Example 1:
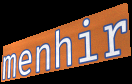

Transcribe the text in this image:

menhir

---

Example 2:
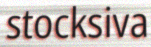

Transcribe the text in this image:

stocksiva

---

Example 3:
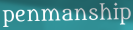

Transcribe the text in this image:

penmanship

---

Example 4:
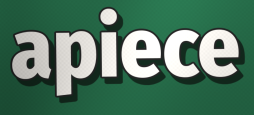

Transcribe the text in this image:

apiece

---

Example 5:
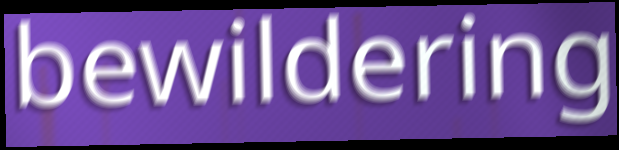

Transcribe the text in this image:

bewildering